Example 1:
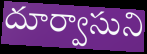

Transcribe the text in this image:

దూర్వాసుని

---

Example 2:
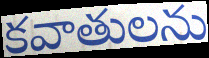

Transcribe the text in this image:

కవాతులను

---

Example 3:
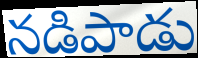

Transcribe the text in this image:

నడిపాడు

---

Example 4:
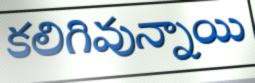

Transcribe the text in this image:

కలిగివున్నాయి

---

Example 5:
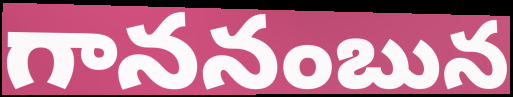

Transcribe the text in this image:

గాననంబున